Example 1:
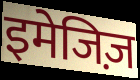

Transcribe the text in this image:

इमेजिज़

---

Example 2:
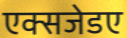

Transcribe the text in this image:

एक्सजेडए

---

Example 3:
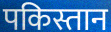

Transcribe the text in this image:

पकिस्तान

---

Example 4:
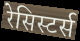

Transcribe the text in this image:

रेसिस्टर्स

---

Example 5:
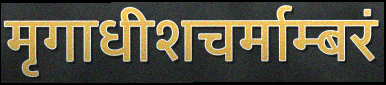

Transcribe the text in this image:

मृगाधीशचर्माम्बरं